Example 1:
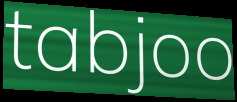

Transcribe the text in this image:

tabjoo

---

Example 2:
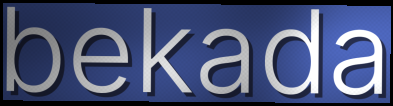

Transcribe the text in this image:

bekada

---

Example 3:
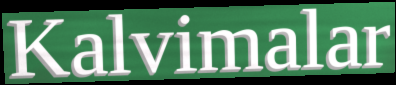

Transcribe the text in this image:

Kalvimalar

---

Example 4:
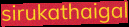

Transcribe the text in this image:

sirukathaigal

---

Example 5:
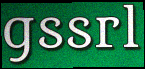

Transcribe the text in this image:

gssrl